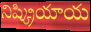
నిష్క్రియాయ